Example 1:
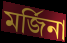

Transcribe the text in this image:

মর্জিনা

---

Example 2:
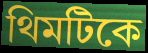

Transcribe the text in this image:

থিমটিকে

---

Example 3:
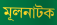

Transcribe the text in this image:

মূলনাটক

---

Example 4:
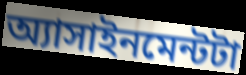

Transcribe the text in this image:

অ্যাসাইনমেন্টটা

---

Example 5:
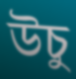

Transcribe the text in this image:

উচু